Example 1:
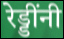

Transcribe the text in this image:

रेड्डींनी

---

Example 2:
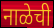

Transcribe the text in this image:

नाळेची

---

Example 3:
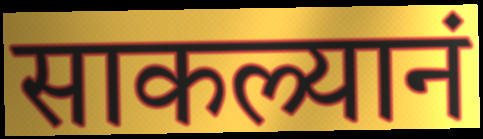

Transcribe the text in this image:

साकल्यानं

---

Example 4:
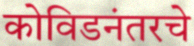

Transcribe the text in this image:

कोविडनंतरचे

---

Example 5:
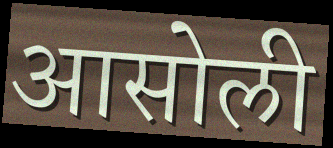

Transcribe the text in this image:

आसोली